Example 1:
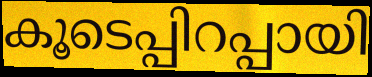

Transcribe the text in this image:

കൂടെപ്പിറപ്പായി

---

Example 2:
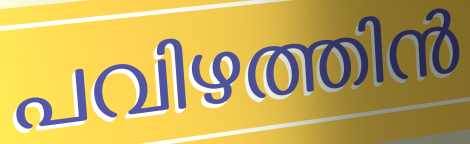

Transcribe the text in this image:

പവിഴത്തിൻ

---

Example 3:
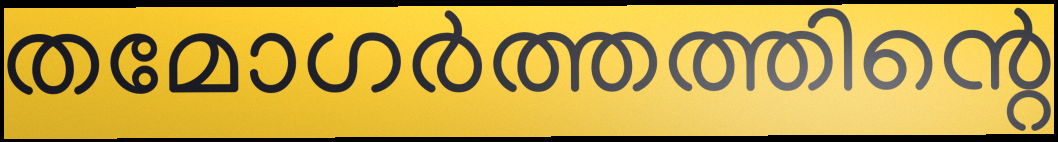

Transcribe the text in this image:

തമോഗർത്തത്തിന്റെ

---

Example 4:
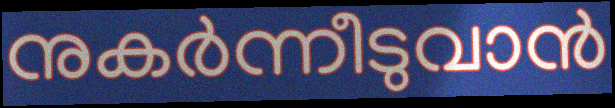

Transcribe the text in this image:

നുകർന്നീടുവാൻ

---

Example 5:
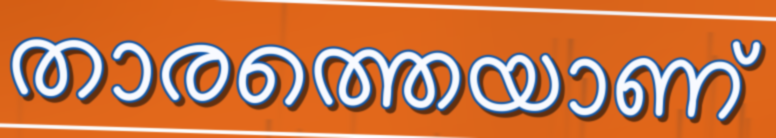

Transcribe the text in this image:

താരത്തെയാണ്